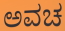
ಅವಚ